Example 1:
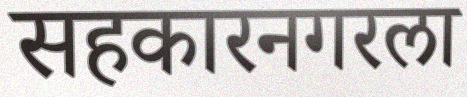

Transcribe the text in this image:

सहकारनगरला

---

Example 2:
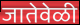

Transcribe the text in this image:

जातेवेळी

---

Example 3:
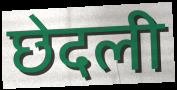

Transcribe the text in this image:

छेदली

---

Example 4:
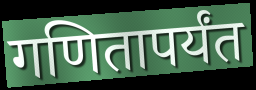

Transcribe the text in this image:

गणितापर्यंत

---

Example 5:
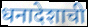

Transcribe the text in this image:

धनादेशाची